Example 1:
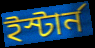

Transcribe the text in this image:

ইস্টার্ন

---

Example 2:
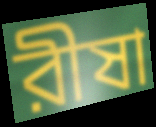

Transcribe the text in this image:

রীষা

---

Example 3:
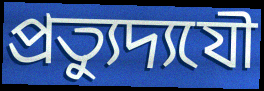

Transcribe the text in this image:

প্রত্যুদ্যযৌ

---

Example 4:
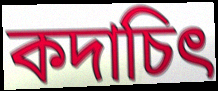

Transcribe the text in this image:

কদাচিৎ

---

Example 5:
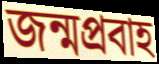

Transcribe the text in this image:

জন্মপ্রবাহ